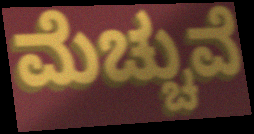
ಮೆಚ್ಚುವೆ